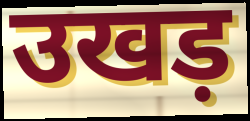
उखड़